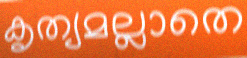
കൃത്യമല്ലാതെ